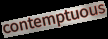
contemptuous